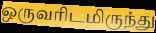
ஒருவரிடமிருந்து